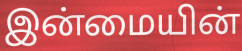
இன்மையின்